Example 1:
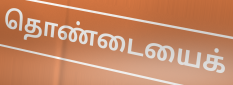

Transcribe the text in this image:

தொண்டையைக்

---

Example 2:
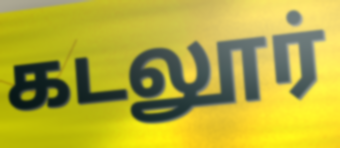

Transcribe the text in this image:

கடலூர்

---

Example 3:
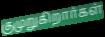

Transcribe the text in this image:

குமுறுகிறார்கள்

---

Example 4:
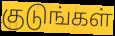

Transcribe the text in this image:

குடுங்கள்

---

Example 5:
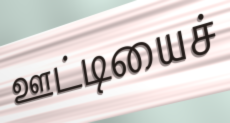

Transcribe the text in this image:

ஊட்டியைச்